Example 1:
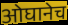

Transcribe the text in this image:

ओघानेच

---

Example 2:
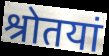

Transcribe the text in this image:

श्रोतयां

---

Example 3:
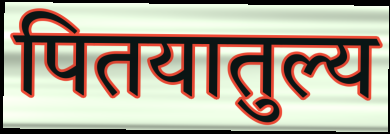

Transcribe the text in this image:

पितयातुल्य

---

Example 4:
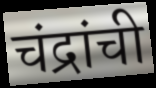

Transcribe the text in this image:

चंद्रांची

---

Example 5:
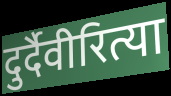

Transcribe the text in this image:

दुर्दैवीरित्या